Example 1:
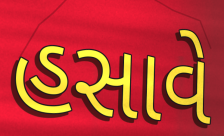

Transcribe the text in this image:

હસાવે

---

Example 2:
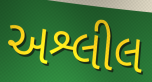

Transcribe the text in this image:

અશ્લીલ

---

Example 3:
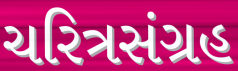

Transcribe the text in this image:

ચરિત્રસંગ્રહ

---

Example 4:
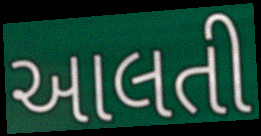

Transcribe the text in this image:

આલતી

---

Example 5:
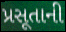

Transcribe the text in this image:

પ્રસૂતાની